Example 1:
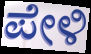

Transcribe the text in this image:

ಪೇಳಿ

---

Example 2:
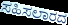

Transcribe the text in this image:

ಸಹಿಸಲಾರದ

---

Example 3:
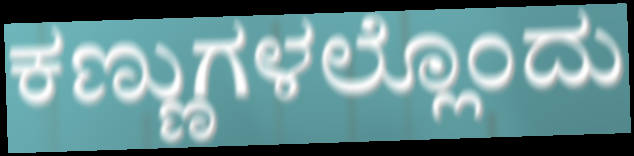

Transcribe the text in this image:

ಕಣ್ಣುಗಳಲ್ಲೊಂದು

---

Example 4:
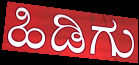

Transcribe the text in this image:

ಹಿಡಿಗು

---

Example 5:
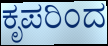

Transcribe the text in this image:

ಕೃಪರಿಂದ